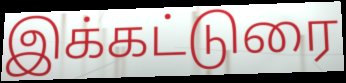
இக்கட்டுரை